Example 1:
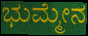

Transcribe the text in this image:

ಭುಮ್ಮೇನ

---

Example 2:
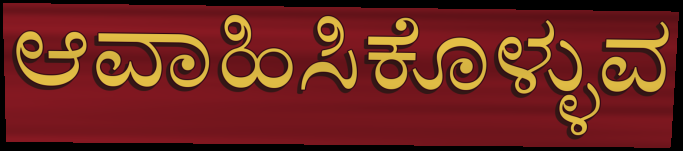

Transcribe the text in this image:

ಆವಾಹಿಸಿಕೊಳ್ಳುವ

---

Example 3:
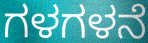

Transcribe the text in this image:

ಗಳಗಳನೆ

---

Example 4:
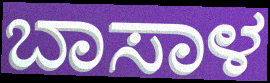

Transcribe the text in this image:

ಬಾಸಾಳ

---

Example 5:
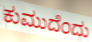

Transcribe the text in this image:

ಕುಮುದೆಂದು